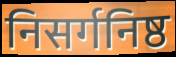
निसर्गनिष्ठ